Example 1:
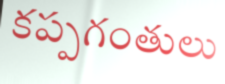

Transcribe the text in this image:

కప్పగంతులు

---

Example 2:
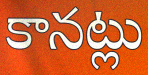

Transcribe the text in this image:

కానట్లు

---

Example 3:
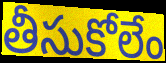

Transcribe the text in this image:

తీసుకోలేం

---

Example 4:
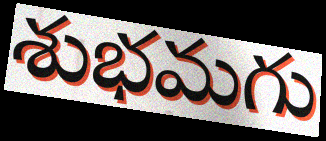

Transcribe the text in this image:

శుభమగు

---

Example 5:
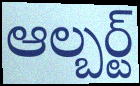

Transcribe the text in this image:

ఆల్బర్ట్